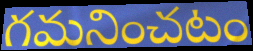
గమనించటం